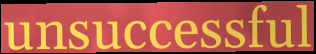
unsuccessful